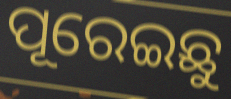
ପୂରେଇଛୁ